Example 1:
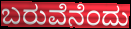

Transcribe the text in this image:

ಬರುವೆನೆಂದು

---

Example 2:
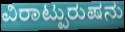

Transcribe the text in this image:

ವಿರಾಟ್ಪುರುಷನು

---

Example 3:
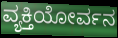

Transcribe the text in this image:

ವ್ಯಕ್ತಿಯೋರ್ವನ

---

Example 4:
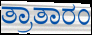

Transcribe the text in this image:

ತ್ರಾತಾರಂ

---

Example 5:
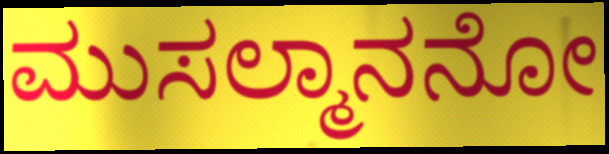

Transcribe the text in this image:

ಮುಸಲ್ಮಾನನೋ